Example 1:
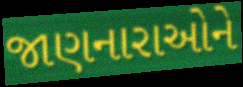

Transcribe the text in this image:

જાણનારાઓને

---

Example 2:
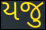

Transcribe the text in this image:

યજુ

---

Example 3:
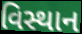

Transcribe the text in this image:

વિસ્થાન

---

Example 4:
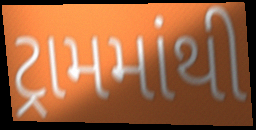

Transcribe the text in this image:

ટ્રામમાંથી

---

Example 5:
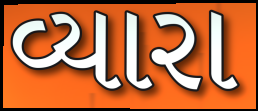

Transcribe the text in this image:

વ્યારા